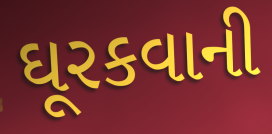
ઘૂરકવાની